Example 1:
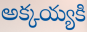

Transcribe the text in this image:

అక్కయ్యకి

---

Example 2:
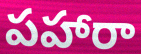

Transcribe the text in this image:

పహారా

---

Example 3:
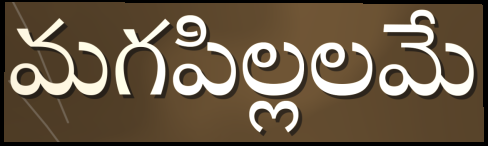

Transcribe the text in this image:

మగపిల్లలమే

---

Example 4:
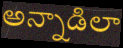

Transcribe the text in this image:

అన్నాడిలా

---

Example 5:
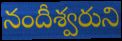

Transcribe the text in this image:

నందీశ్వరుని